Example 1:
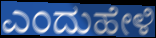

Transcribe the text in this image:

ಎಂದುಹೇಳಿ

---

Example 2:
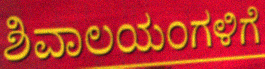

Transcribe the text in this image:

ಶಿವಾಲಯಂಗಳಿಗೆ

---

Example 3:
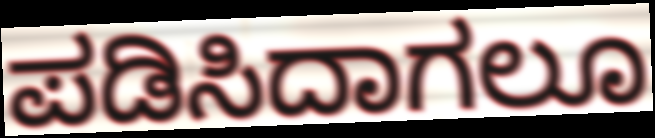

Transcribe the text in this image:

ಪಡಿಸಿದಾಗಲೂ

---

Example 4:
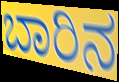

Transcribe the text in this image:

ಬಾರಿನ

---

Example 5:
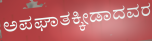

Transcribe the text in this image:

ಅಪಘಾತಕ್ಕೀಡಾದವರ